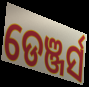
ଡେଞ୍ଜର୍ସ